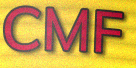
CMF